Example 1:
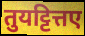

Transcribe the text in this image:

तुयट्टित्तए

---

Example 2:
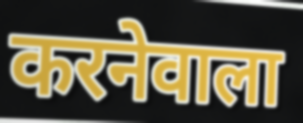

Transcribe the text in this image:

करनेवाला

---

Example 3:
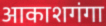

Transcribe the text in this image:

आकाशगंगा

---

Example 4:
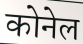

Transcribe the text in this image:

कोनेल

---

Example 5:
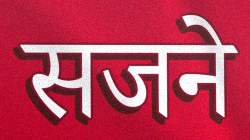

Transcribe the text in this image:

सजने